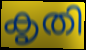
കൃതി